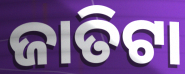
ଜାତିଟା